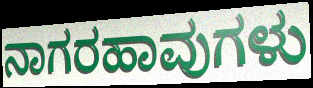
ನಾಗರಹಾವುಗಳು